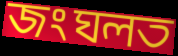
জংঘলত